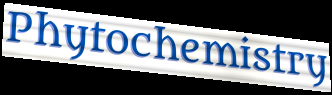
Phytochemistry